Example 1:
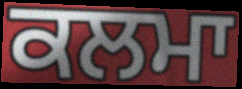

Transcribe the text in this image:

ਕਲਮਾ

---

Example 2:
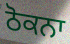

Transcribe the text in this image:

ਠੋਕਨਾ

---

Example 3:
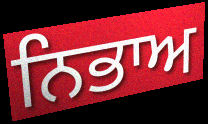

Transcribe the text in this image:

ਨਿਭਾਅ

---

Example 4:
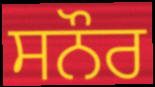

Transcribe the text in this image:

ਸਨੌਰ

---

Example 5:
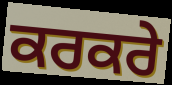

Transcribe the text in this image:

ਕਰਕਰੇ